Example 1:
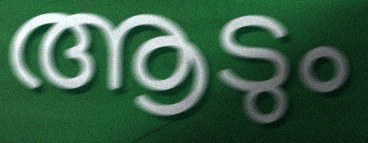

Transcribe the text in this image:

ആടും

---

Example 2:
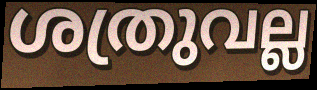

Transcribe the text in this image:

ശത്രുവല്ല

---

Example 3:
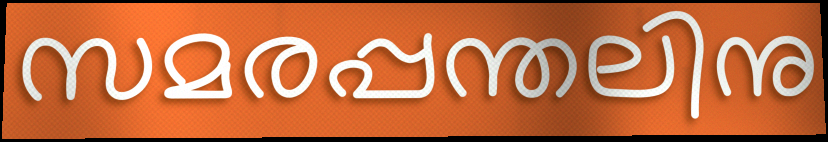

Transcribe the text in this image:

സമരപ്പന്തലിനു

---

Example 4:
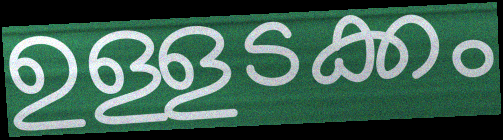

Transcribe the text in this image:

ഉള്ളടക്കം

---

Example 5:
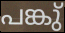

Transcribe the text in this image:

പങ്കു്